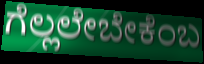
ಗೆಲ್ಲಲೇಬೇಕೆಂಬ